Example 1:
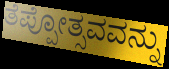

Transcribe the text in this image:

ತೆಪ್ಪೋತ್ಸವವನ್ನು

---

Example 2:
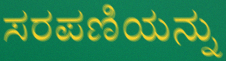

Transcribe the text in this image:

ಸರಪಣಿಯನ್ನು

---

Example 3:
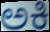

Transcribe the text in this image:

ಅಕಿ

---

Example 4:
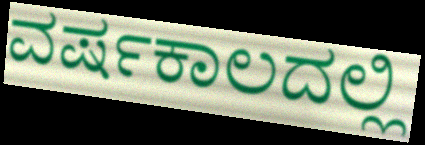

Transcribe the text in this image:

ವರ್ಷಕಾಲದಲ್ಲಿ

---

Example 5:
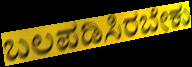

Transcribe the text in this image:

ಬಲಪಡಿಸಿರಬೇಕು